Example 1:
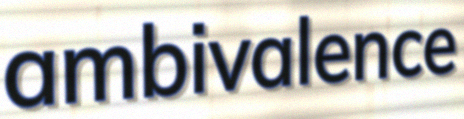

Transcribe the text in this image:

ambivalence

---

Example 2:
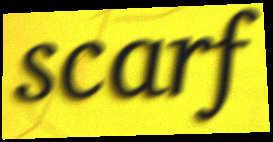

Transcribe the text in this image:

scarf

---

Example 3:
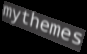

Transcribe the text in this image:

mythemes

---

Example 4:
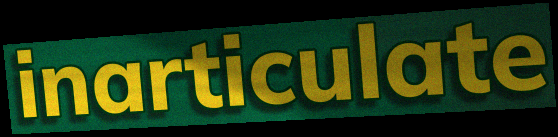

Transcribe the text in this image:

inarticulate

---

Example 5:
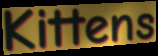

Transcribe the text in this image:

Kittens